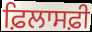
ਫ਼ਿਲਾਸਫ਼ੀ